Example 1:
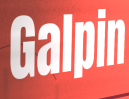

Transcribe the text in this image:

Galpin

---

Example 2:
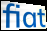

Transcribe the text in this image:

fiat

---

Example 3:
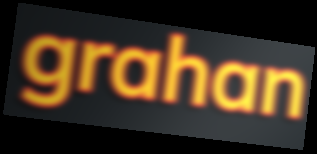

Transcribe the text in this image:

grahan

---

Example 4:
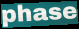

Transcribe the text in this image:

phase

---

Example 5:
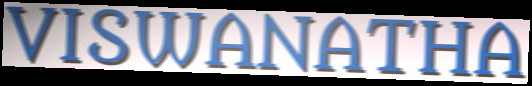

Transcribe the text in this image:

VISWANATHA